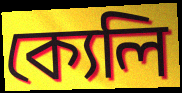
ক্যেলি